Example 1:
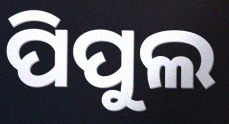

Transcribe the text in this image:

ପିପୁଲ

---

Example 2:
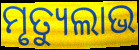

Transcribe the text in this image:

ମୃତ୍ୟୁଲାଭ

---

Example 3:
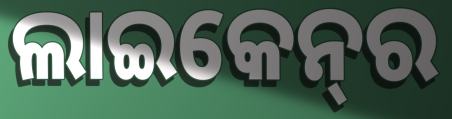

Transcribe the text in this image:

ଲାଇକେନ୍‌ର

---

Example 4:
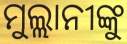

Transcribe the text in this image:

ମୁଲ୍ଲାନୀଙ୍କୁ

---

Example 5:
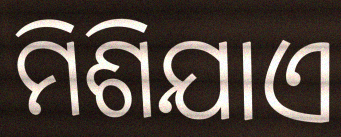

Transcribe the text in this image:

ମିଶିଯାଏ